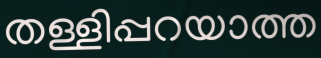
തള്ളിപ്പറയാത്ത